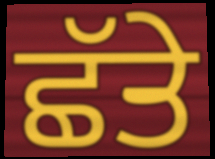
ਛੱਤੇ